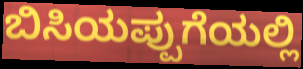
ಬಿಸಿಯಪ್ಪುಗೆಯಲ್ಲಿ